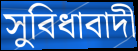
সুবিধাবাদী